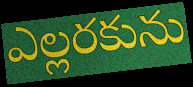
ఎల్లరకును